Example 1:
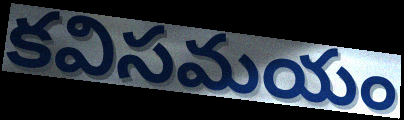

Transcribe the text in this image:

కవిసమయం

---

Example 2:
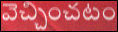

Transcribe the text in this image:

వెచ్చించటం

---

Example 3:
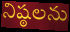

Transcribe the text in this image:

నిష్ఠలను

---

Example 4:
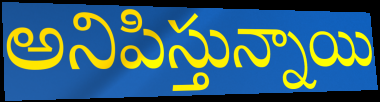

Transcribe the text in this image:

అనిపిస్తున్నాయి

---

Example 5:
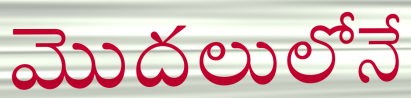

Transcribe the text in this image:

మొదలులోనే